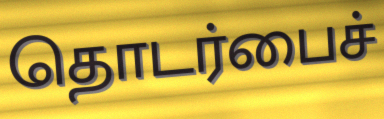
தொடர்பைச்